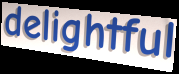
delightful